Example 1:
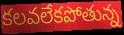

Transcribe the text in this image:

కలవలేకపోతున్న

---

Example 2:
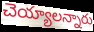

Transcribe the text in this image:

చెయ్యాలన్నారు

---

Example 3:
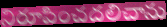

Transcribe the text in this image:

నిరూపించదలిచాను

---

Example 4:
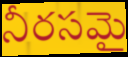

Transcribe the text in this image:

నీరసమై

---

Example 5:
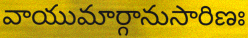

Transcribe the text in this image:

వాయుమార్గానుసారిణః